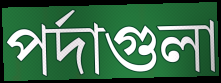
পর্দাগুলা